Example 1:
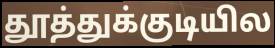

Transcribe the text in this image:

தூத்துக்குடியில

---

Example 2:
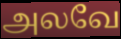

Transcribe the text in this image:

அலவே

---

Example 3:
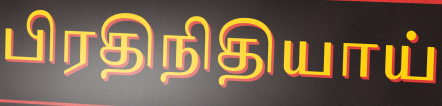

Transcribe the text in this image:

பிரதிநிதியாய்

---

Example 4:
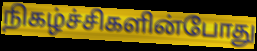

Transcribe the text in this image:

நிகழ்ச்சிகளின்போது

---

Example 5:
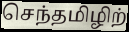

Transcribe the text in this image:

செந்தமிழிற்